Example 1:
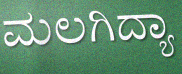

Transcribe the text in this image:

ಮಲಗಿದ್ಯಾ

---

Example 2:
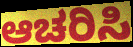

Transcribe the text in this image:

ಆಚರಿಸಿ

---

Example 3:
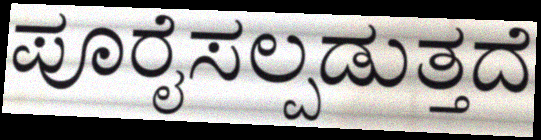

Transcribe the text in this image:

ಪೂರೈಸಲ್ಪಡುತ್ತದೆ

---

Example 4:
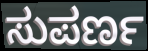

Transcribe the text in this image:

ಸುಪರ್ಣ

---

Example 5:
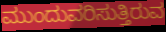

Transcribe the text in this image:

ಮುಂದುವರಿಸುತ್ತಿರುವ